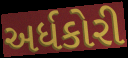
અર્ધકોરી